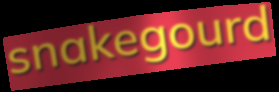
snakegourd